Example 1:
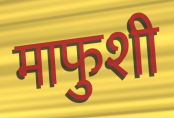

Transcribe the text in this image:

माफुशी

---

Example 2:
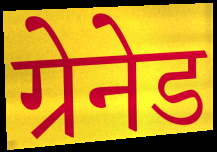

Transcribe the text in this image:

ग्रेनेड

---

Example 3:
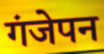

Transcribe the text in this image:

गंजेपन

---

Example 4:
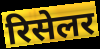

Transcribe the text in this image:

रिसेलर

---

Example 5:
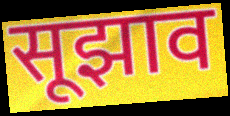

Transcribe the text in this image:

सूझाव